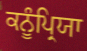
ਕਨੂੰਪ੍ਰਿਯਾ